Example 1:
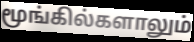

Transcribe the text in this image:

மூங்கில்களாலும்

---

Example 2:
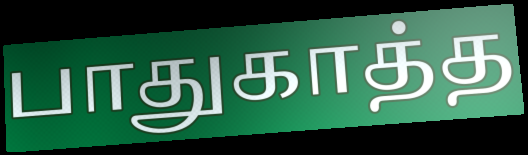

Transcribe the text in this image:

பாதுகாத்த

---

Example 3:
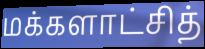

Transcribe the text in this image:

மக்களாட்சித்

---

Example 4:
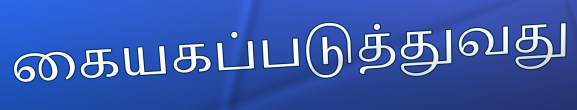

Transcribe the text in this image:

கையகப்படுத்துவது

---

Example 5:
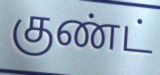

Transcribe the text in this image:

குண்ட்